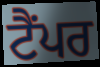
ਟੈਂਪਰ